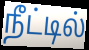
நீட்டில்